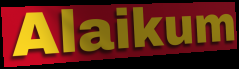
Alaikum